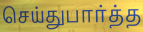
செய்துபார்த்த